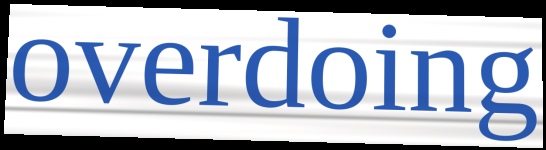
overdoing